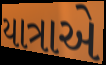
યાત્રાએ